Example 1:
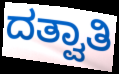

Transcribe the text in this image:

ದತ್ವಾತಿ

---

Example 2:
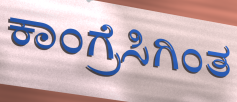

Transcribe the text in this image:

ಕಾಂಗ್ರೆಸಿಗಿಂತ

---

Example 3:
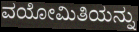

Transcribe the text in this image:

ವಯೋಮಿತಿಯನ್ನು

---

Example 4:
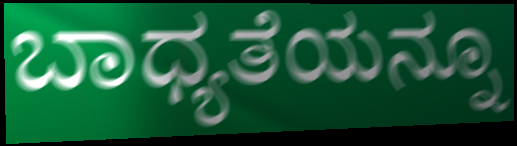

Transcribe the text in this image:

ಬಾಧ್ಯತೆಯನ್ನೂ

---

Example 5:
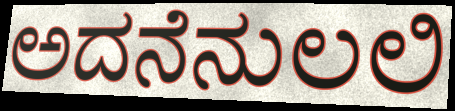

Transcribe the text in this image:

ಅದನೆನುಲಲಿ